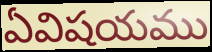
ఏవిషయము